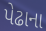
પેઢાના